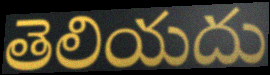
తెలియదు